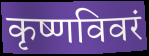
कृष्णविवरं